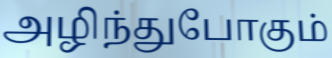
அழிந்துபோகும்